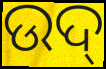
ଉଦ୍